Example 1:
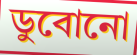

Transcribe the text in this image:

ডুবোনো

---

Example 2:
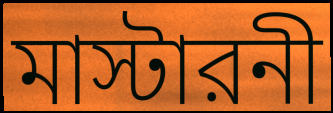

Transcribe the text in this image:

মাস্টারনী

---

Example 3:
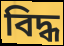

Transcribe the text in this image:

বিদ্ধ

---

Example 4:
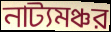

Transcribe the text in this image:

নাট্যমঞ্চর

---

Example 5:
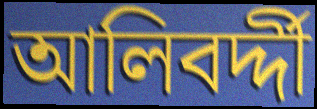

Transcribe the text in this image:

আলিবর্দ্দী